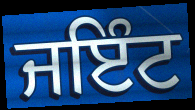
ਜਇੰਟ